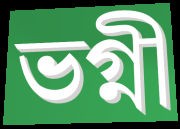
ভগ্নী